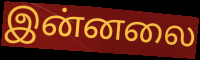
இன்னலை